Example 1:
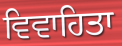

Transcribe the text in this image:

ਵਿਵਾਹਿਤਾ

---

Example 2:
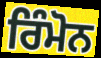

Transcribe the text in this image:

ਰਿੰਮੋਨ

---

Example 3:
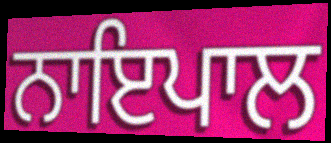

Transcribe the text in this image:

ਨਾਇਪਾਲ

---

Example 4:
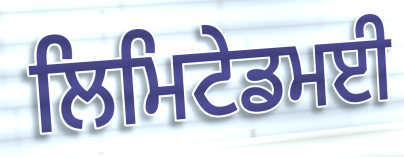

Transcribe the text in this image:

ਲਿਮਿਟੇਡਮਈ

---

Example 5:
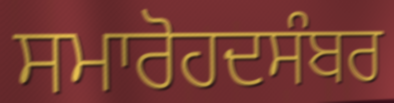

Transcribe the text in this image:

ਸਮਾਰੋਹਦਸੰਬਰ